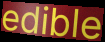
edible